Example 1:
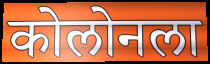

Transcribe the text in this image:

कोलोनला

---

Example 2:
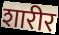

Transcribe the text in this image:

शारीर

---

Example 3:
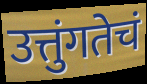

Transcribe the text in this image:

उत्तुंगतेचं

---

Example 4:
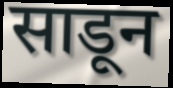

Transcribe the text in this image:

साडून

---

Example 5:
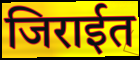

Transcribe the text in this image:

जिराईत